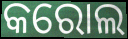
କରୋଲ